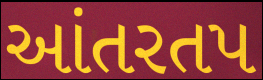
આંતરતપ